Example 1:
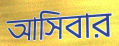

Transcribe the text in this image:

আসিবার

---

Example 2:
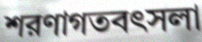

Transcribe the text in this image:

শরণাগতবৎসলা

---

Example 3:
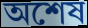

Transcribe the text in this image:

অশেষ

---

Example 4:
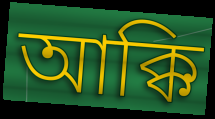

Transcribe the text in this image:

আক্কি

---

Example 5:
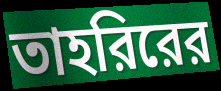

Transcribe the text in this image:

তাহরিরের